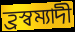
হ্ৰস্বম্যাদী